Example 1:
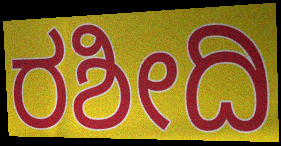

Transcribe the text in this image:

ರಶೀದಿ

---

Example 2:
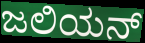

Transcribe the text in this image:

ಜಲಿಯನ್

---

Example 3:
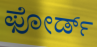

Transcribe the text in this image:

ಫೋರ್ಡ್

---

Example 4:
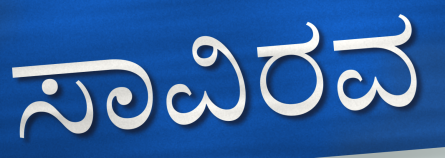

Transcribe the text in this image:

ಸಾವಿರವ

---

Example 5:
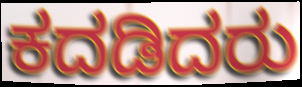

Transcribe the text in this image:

ಕದಡಿದರು